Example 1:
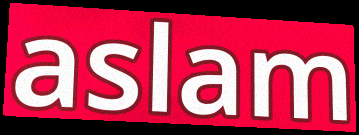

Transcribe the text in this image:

aslam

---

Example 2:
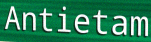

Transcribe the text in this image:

Antietam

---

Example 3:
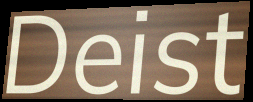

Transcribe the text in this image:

Deist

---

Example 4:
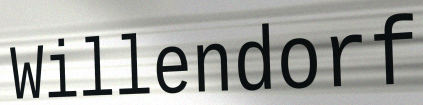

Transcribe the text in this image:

Willendorf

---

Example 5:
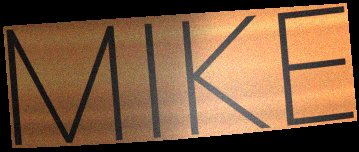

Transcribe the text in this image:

MIKE